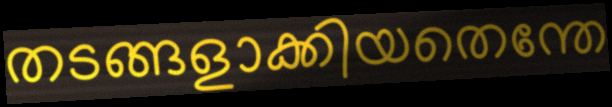
തടങ്ങളാക്കിയതെന്തേ